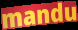
mandu